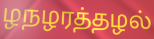
ழநழரத்தழல்